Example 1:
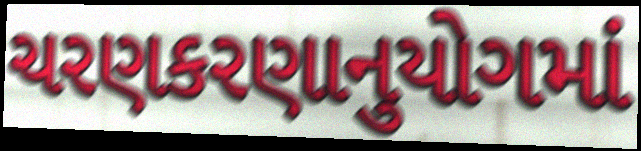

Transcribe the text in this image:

ચરણકરણાનુયોગમાં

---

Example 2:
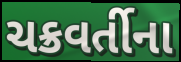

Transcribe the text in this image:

ચક્રવર્તીના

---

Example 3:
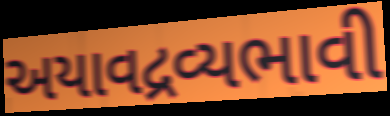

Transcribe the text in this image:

અયાવદ્રવ્યભાવી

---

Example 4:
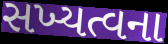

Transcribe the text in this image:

સખ્યત્વના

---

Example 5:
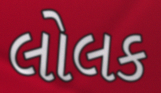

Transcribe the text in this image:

લોલક